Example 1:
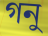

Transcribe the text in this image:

গনু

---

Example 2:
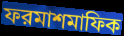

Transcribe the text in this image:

ফরমাশমাফিক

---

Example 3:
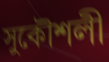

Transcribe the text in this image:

সুকৌশলী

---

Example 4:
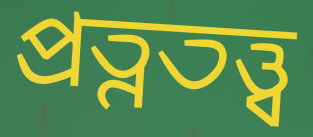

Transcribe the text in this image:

প্রত্নতত্ত্ব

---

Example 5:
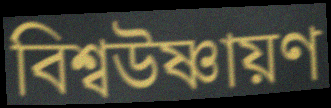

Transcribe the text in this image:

বিশ্বউষ্ণায়ণ